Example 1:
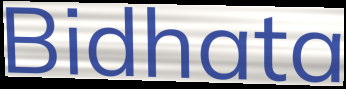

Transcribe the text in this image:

Bidhata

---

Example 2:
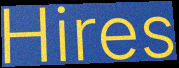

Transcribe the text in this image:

Hires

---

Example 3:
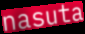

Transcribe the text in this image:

nasuta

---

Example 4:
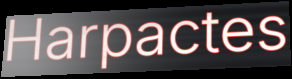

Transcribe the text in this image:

Harpactes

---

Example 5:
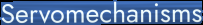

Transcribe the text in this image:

Servomechanisms